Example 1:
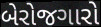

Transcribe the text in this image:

બેરોજગારો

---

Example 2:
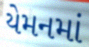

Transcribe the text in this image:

યેમનમાં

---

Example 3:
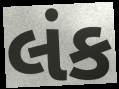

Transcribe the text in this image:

લંક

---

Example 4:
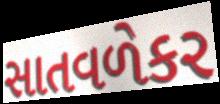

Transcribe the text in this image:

સાતવળેકર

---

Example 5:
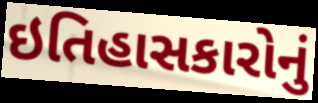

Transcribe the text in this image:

ઇતિહાસકારોનું